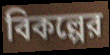
বিকল্পের